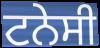
ਟਨੇਸੀ